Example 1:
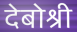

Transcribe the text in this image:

देबोश्री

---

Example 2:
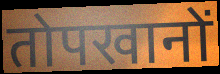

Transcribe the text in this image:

तोपखानों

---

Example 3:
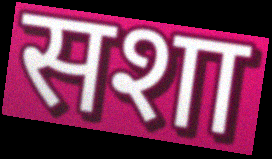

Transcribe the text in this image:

सशा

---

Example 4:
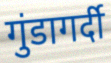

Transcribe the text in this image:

गुंडागर्दी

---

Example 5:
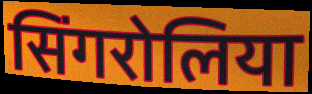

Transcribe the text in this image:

सिंगरोलिया